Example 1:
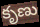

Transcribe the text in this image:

కృణు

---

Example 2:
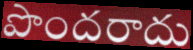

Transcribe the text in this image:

పొందరాదు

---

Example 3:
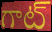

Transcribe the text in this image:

గాట్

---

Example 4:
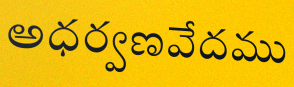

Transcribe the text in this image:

అధర్వణవేదము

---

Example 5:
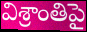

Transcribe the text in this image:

విశ్రాంతిపై